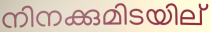
നിനക്കുമിടയില്